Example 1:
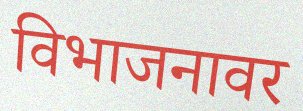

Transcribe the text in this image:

विभाजनावर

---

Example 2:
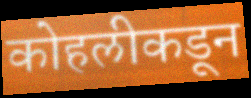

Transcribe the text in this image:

कोहलीकडून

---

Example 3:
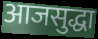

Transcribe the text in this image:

आजसुद्धा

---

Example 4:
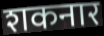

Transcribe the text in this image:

शकनार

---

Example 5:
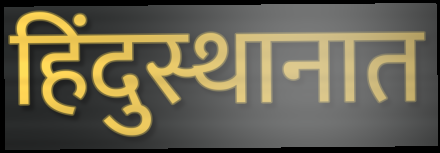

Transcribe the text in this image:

हिंदुस्थानात